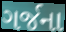
ગર્જના